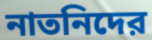
নাতনিদের